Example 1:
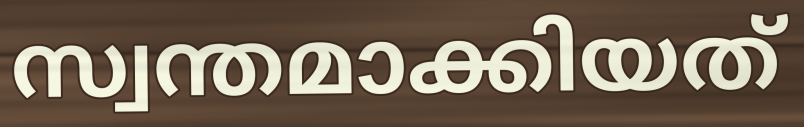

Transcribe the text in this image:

സ്വന്തമാക്കിയത്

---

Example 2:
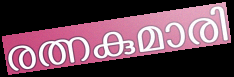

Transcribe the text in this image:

രത്നകുമാരി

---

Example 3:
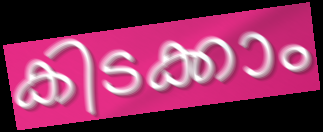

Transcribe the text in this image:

കിടക്കാം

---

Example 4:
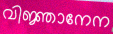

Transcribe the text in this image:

വിജ്ഞാനേന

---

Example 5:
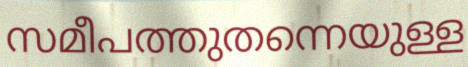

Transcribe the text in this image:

സമീപത്തുതന്നെയുള്ള